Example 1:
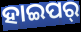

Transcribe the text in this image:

ହାଇପର୍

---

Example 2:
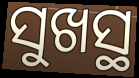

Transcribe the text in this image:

ସୁଖସ୍ଥ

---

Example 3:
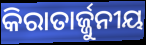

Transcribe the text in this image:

କିରାତାର୍ଜ୍ଜୁନୀୟ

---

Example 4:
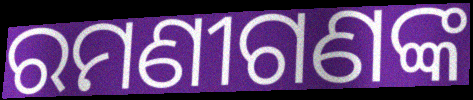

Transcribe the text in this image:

ରମଣୀଗଣଙ୍କ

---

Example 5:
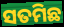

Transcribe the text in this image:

ସତମିଛ